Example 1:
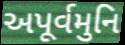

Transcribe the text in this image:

અપૂર્વમુનિ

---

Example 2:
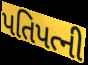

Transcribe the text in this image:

પતિપત્ની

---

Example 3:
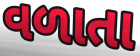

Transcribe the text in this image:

વળાતા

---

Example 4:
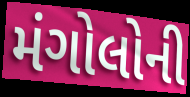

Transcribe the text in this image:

મંગોલોની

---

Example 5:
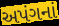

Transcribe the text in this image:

અપંગનાં